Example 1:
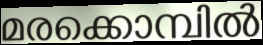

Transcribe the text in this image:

മരക്കൊമ്പിൽ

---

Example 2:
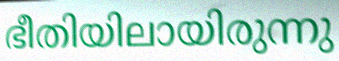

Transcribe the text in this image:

ഭീതിയിലായിരുന്നു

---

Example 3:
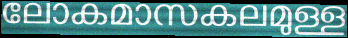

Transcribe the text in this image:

ലോകമാസകലമുള്ള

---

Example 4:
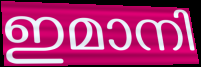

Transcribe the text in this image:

ഇമാനി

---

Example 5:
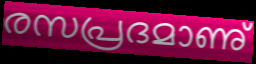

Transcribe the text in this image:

രസപ്രദമാണു്